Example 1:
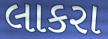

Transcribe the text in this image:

લાકરા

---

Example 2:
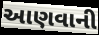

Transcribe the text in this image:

આણવાની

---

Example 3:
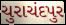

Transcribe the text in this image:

ચુરાચંદપુર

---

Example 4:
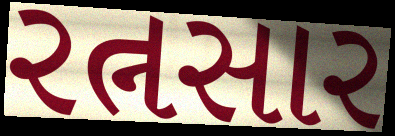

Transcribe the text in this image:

રત્નસાર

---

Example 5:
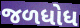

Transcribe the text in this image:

જળધોધ